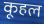
कूहल